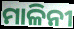
ମାଳିନୀ